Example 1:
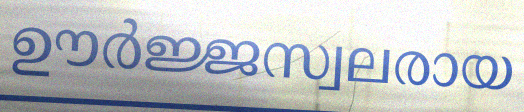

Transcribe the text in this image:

ഊർജ്ജസ്വലരായ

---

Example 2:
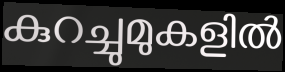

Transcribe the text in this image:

കുറച്ചുമുകളിൽ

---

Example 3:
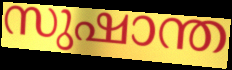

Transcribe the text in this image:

സുഷാന്ത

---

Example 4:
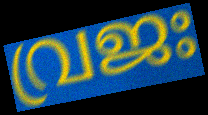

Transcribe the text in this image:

വ്രജഃ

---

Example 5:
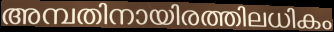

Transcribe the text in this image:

അമ്പതിനായിരത്തിലധികം